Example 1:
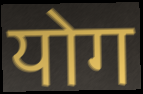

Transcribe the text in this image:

योग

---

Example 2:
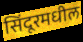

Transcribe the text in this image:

सिंदूरमधील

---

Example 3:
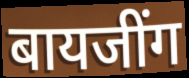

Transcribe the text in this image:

बायजींग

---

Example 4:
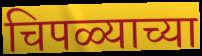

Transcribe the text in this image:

चिपळ्याच्या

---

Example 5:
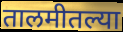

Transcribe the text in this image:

तालमीतल्या